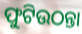
ଫୁଟିଉଠନ୍ତା